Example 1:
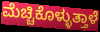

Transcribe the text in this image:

ಮೆಚ್ಚಿಕೊಳ್ಳುತ್ತಾಳೆ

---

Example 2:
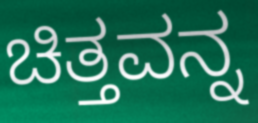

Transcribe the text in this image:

ಚಿತ್ತವನ್ನ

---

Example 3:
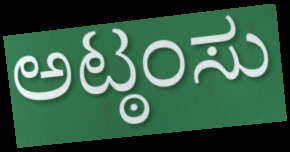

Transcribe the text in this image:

ಅಟ್ಠಂಸು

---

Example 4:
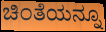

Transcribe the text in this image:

ಚಿಂತೆಯನ್ನೂ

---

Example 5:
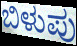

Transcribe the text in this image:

ಬಿಳುಪು